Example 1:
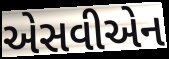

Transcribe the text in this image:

એસવીએન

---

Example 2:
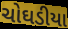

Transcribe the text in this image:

ચોઘડીયા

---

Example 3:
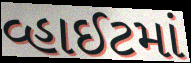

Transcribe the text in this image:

વ્હાઈટમાં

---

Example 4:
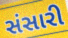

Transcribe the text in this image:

સંસારી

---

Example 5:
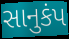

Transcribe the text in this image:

સાનુકંપ